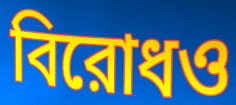
বিরোধও